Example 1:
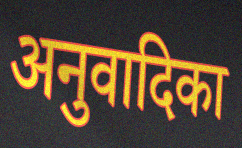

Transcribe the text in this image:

अनुवादिका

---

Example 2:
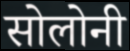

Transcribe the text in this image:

सोलोनी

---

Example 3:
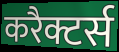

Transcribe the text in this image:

करैक्टर्स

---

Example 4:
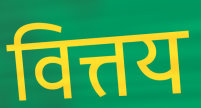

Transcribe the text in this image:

वित्तय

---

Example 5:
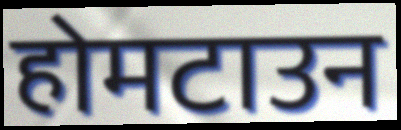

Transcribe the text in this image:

होमटाउन